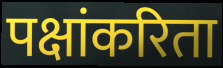
पक्षांकरिता